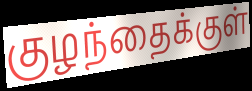
குழந்தைக்குள்